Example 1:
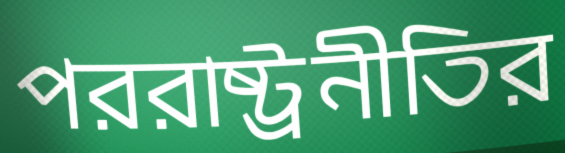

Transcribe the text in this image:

পররাষ্ট্রনীতির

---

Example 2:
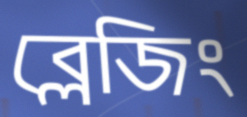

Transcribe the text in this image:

ব্লেজিং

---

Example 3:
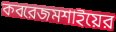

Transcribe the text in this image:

কবরেজমশাইয়ের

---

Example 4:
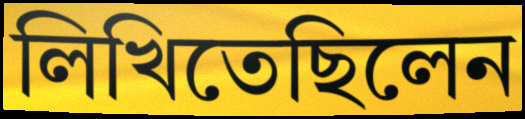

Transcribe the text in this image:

লিখিতেছিলেন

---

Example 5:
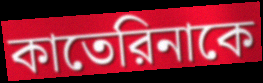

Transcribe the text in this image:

কাতেরিনাকে